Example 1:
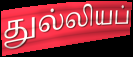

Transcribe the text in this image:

துல்லியப்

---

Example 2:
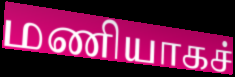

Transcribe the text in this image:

மணியாகச்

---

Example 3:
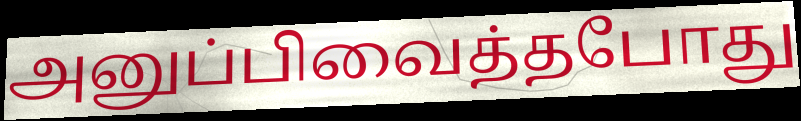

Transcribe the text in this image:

அனுப்பிவைத்தபோது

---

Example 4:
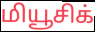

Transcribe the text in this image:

மியூசிக்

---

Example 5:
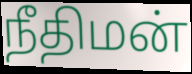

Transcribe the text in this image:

நீதிமன்